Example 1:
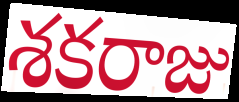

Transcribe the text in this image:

శకరాజు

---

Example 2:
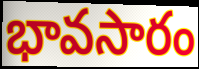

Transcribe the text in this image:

భావసారం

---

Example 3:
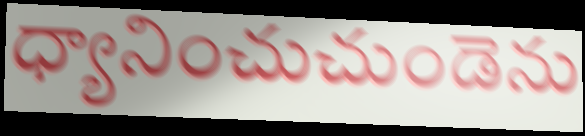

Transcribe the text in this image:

ధ్యానించుచుండెను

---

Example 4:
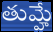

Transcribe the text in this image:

తుమ్హే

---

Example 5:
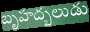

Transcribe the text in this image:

బృహద్బలుడు